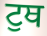
ਟੁਥ